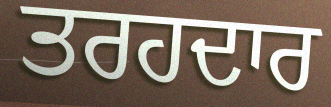
ਤਰਹਦਾਰ